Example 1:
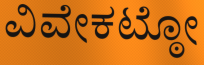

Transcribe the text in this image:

ವಿವೇಕಟ್ಠೋ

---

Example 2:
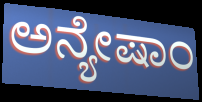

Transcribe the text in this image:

ಅನ್ಯೇಷಾಂ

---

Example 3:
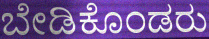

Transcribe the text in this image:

ಬೇಡಿಕೊಂಡರು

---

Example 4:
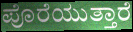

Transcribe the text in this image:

ಪೊರೆಯುತ್ತಾರೆ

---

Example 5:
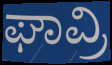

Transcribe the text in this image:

ಘಾವ್ರಿ